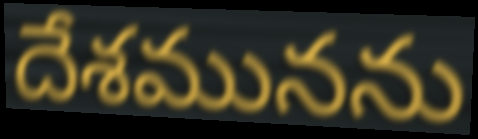
దేశమునను